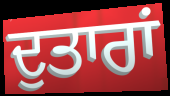
ਦੁਤਾਰਾਂ